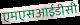
एमएसआईडीसी